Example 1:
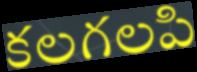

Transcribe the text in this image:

కలగలపి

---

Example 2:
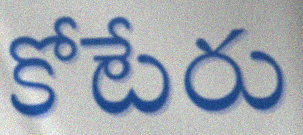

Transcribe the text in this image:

కోటేరు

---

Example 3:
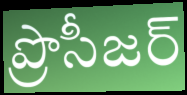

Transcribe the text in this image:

ప్రొసీజర్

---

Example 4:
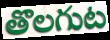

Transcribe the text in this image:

తొలగుట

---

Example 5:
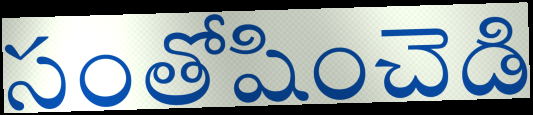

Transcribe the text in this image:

సంతోషించెడి